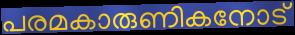
പരമകാരുണികനോട്